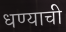
धण्याची